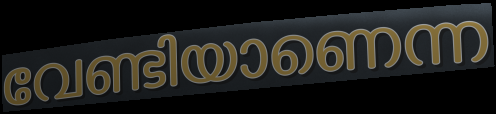
വേണ്ടിയാണെന്ന